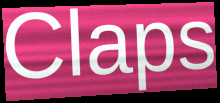
Claps